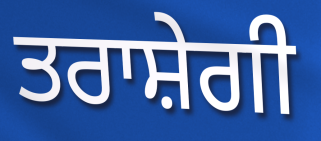
ਤਰਾਸ਼ੇਗੀ